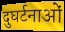
दुघर्टनाओं